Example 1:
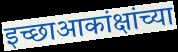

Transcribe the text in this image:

इच्छाआकांक्षांच्या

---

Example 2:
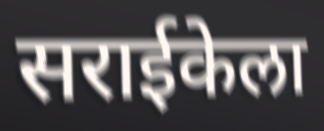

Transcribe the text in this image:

सराईकेला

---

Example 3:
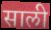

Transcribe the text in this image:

साली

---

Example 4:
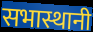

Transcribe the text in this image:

सभास्थानी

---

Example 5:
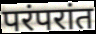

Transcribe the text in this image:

परंपरांत